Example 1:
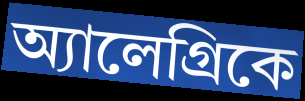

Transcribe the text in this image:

অ্যালেগ্রিকে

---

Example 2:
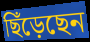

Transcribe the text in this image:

ছিঁড়েছেন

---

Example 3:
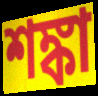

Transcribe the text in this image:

শঙ্কা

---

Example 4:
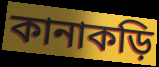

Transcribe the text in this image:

কানাকড়ি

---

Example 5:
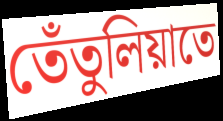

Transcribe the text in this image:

তেঁতুলিয়াতে